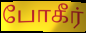
போகீர்